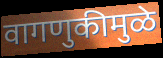
वागणुकीमुळे